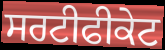
ਸਰਟੀਫੀਕੇਟ